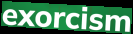
exorcism